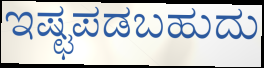
ಇಷ್ಟಪಡಬಹುದು